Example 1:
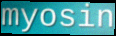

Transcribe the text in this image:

myosin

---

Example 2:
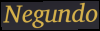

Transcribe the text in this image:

Negundo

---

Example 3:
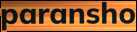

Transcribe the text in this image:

paransho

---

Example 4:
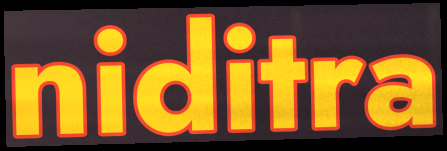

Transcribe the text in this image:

niditra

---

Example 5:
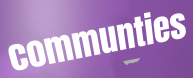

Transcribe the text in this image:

communties